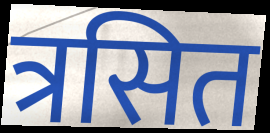
त्रसित